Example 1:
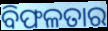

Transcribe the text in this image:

ବିଫଳତାର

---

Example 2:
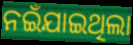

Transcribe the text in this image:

ନଇଁଯାଇଥିଲା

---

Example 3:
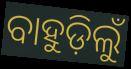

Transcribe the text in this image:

ବାହୁଡ଼ିଲୁଁ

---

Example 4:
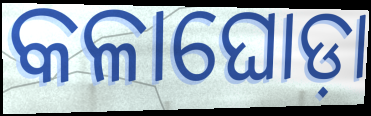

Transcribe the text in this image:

କଳାଘୋଡ଼ା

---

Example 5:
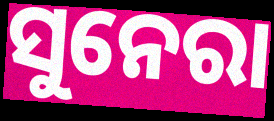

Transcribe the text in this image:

ସୁନେରା